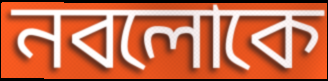
নবলোকে